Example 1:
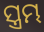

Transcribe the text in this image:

ସ୍ତ୍ରମ୍ଭ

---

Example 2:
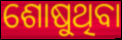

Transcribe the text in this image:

ଶୋଷୁଥିବା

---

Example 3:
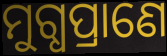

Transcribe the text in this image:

ମୁଗ୍ଧପ୍ରାଣେ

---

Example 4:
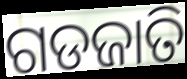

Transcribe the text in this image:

ଗଡଜାତି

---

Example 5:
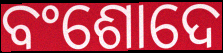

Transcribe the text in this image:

ବଂଶୋଦେ